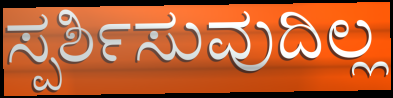
ಸ್ಪರ್ಶಿಸುವುದಿಲ್ಲ